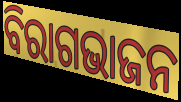
ବିରାଗଭାଜନ